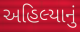
અહિલ્યાનું